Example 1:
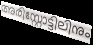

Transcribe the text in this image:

അരിസ്റ്റോട്ടിലിനും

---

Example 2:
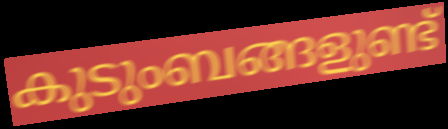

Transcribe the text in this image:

കുടുംബങ്ങളുണ്ട്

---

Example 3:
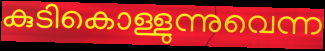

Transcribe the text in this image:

കുടികൊള്ളുന്നുവെന്ന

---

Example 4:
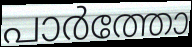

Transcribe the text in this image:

പാർത്തോ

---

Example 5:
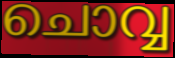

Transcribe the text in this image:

ചൊവ്വ